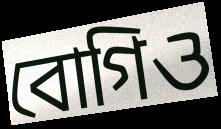
বোগিও